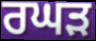
ਰਘੜ